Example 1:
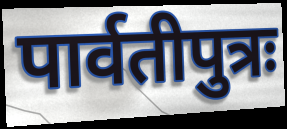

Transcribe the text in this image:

पार्वतीपुत्रः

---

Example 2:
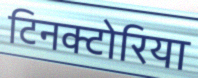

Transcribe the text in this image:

टिनक्टोरिया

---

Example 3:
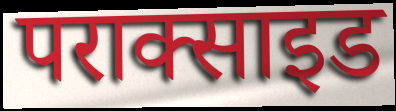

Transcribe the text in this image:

पराक्साइड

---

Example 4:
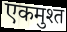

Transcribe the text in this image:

एकमुश्त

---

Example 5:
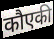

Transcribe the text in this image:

कौएकी